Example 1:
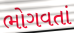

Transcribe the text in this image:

ભોગવતાં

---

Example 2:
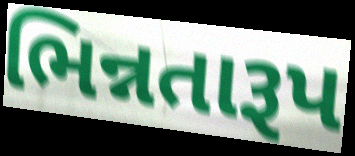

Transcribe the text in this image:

ભિન્નતારૂપ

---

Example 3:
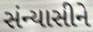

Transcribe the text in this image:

સંન્યાસીને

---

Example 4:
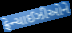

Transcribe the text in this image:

ફ્રેન્ચાઈઝીઓને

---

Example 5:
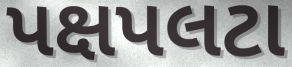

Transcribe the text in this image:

પક્ષપલટા